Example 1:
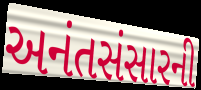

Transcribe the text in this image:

અનંતસંસારની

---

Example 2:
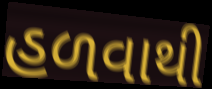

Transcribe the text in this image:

હળવાથી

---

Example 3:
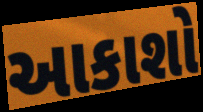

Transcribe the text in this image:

આકાશો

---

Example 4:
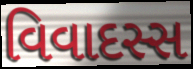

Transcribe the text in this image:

વિવાદસ્સ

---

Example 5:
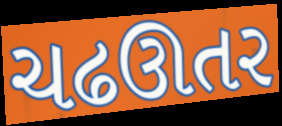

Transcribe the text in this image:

ચઢઊતર